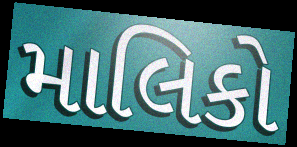
માલિકો